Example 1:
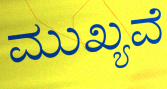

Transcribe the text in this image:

ಮುಖ್ಯವೆ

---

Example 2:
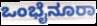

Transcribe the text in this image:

ಒಂಭೈನೂರಾ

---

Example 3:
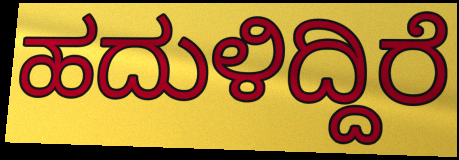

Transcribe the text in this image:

ಹದುಳಿದ್ದಿರೆ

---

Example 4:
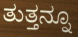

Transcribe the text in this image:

ತುತ್ತನ್ನೂ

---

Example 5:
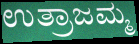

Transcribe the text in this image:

ಉತ್ರಾಜಮ್ಮ